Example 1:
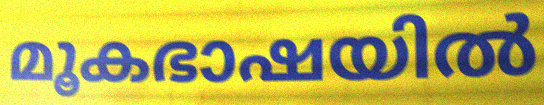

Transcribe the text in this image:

മൂകഭാഷയിൽ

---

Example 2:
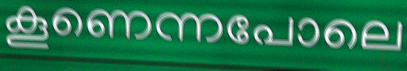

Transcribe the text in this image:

കൂണെന്നപോലെ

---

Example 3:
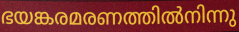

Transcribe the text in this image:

ഭയങ്കരമരണത്തിൽനിന്നു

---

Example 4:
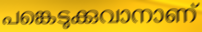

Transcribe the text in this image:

പങ്കെടുക്കുവാനാണ്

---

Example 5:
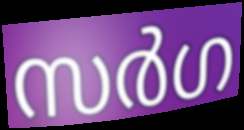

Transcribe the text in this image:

സർഗ